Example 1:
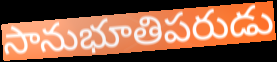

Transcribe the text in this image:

సానుభూతిపరుడు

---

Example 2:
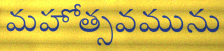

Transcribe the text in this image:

మహోత్సవమును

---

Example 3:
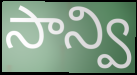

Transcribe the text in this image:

సాన్వి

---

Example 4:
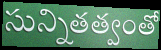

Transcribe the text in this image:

సున్నితత్వంతో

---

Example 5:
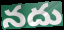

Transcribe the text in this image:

నదు